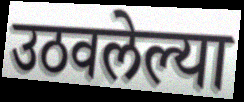
उठवलेल्या